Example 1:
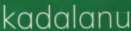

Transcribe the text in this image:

kadalanu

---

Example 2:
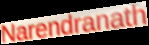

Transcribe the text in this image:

Narendranath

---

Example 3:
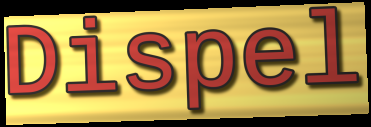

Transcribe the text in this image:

Dispel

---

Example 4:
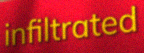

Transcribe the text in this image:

infiltrated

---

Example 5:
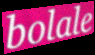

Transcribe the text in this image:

bolale